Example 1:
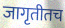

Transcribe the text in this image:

जागृतीतच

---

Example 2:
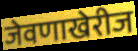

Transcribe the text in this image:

जेवणाखेरीज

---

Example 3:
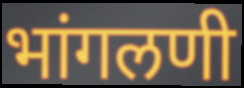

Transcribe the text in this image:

भांगलणी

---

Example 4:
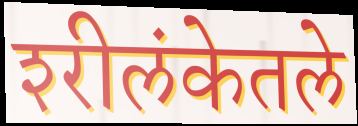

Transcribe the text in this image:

श्रीलंकेतले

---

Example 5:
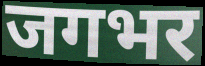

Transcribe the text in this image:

जगभर